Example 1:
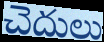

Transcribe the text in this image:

చెదులు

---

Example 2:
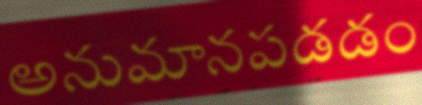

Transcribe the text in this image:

అనుమానపడడం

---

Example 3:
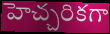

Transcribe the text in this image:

హెచ్చరికగా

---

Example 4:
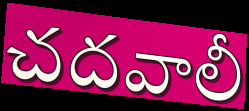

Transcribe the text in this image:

చదవాలీ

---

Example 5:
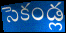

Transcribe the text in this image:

సెకండ్ల